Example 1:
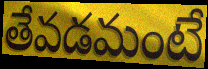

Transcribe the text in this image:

తేవడమంటే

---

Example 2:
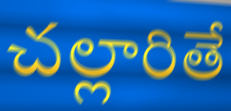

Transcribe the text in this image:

చల్లారితే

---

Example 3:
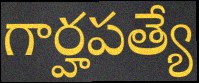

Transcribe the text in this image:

గార్హపత్యే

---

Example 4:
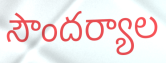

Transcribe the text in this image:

సౌందర్యాల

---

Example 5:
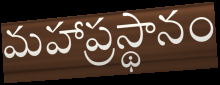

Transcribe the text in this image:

మహాప్రస్థానం